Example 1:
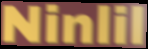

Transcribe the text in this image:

Ninlil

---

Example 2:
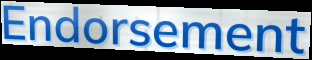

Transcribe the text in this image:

Endorsement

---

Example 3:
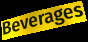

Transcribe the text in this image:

Beverages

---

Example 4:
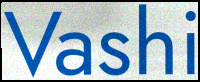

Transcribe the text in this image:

Vashi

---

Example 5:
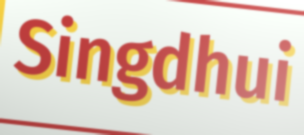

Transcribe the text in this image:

Singdhui